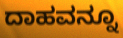
ದಾಹವನ್ನೂ